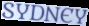
SYDNEY